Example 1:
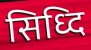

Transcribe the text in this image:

सिध्दि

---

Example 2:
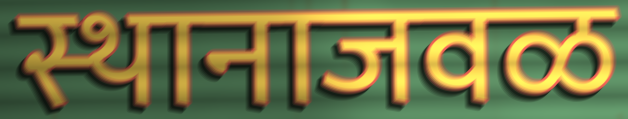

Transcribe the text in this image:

स्थानाजवळ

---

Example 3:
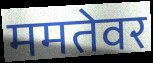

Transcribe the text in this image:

ममतेवर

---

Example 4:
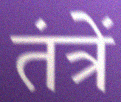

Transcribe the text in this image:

तंत्रें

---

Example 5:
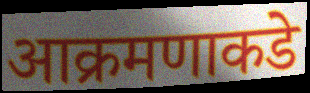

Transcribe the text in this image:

आक्रमणाकडे